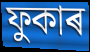
ফুকাৰ